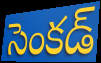
సెంకడ్